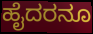
ಹೈದರನೂ